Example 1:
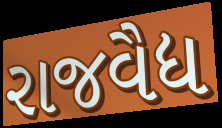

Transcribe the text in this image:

રાજવૈદ્ય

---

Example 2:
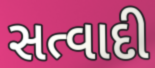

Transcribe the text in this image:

સત્વાદી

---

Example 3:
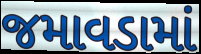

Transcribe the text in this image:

જમાવડામાં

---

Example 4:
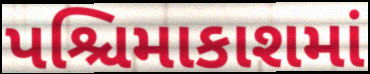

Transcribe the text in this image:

પશ્ચિમાકાશમાં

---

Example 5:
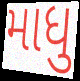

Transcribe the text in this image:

માધુ